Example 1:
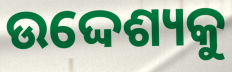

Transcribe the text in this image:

ଉଦ୍ଦେଶ୍ୟକୁ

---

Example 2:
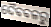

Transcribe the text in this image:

ଦୈବବଳରୁ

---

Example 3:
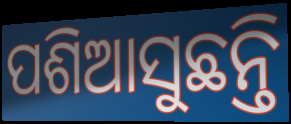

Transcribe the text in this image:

ପଶିଆସୁଛନ୍ତି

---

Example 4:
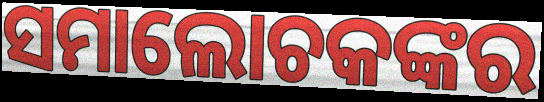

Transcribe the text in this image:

ସମାଲୋଚକଙ୍କର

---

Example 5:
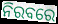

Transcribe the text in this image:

ନିରବରେ